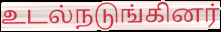
உடல்நடுங்கினர்